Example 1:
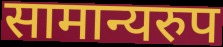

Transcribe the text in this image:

सामान्यरुप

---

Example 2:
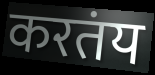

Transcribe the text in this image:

करतंय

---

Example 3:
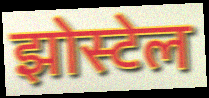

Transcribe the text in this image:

झोस्टेल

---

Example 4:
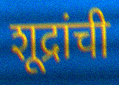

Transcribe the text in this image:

शूद्रांची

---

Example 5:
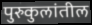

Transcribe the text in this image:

पुरुकुलांतील